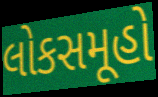
લોકસમૂહો